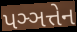
પઞ્ઞત્તેન